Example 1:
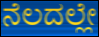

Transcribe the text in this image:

ನೆಲದಲ್ಲೇ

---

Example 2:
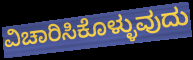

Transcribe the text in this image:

ವಿಚಾರಿಸಿಕೊಳ್ಳುವುದು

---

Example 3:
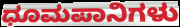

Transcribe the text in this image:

ಧೂಮಪಾನಿಗಳು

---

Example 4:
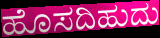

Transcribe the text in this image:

ಹೊಸದಿಹುದು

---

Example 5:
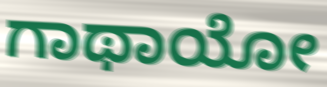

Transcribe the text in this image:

ಗಾಥಾಯೋ